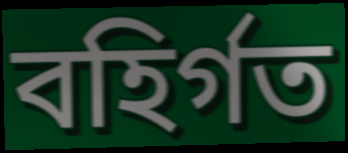
বহির্গত